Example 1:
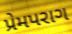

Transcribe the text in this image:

પ્રેમપરાગ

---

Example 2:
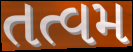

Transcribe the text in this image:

તત્વમ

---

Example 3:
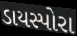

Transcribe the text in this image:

ડાયસ્પોરા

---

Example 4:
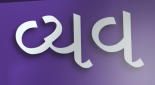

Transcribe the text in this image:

વ્યવ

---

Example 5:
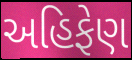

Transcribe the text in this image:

અહિફેણ